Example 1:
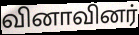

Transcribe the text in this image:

வினாவினர்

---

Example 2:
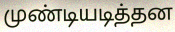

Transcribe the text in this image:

முண்டியடித்தன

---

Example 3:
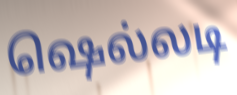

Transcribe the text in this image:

ஷெல்லடி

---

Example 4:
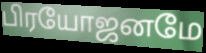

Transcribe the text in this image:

பிரயோஜனமே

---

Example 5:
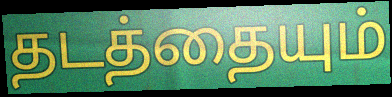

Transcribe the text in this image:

தடத்தையும்